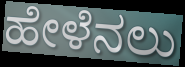
ಹೇಳೆನಲು